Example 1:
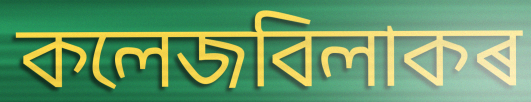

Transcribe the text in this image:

কলেজবিলাকৰ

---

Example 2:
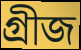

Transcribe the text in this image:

গ্ৰীজ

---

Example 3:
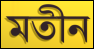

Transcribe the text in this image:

মতীন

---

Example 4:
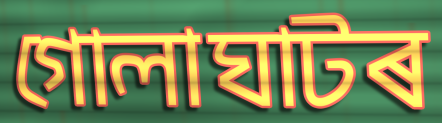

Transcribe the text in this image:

গোলাঘাটৰ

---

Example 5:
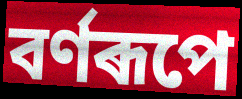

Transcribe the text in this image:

বৰ্ণৰূপে